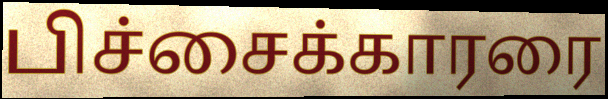
பிச்சைக்காரரை